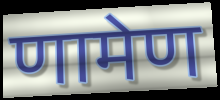
णामेण